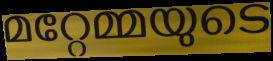
മറ്റേമ്മയുടെ